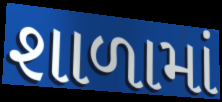
શાળામાં